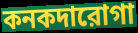
কনকদারোগা